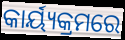
କାର୍ୟ୍ୟକ୍ରମରେ